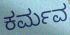
ಕರ್ಮವ